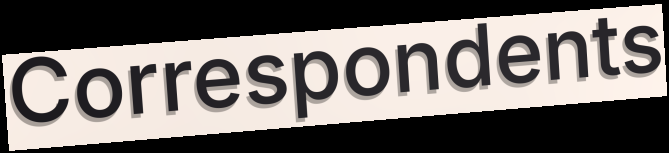
Correspondents